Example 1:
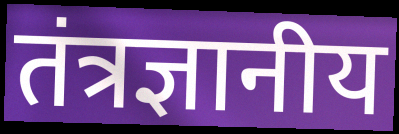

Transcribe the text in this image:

तंत्रज्ञानीय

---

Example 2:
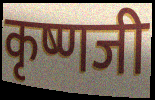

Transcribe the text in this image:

कृष्णजी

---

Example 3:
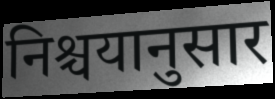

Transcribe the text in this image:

निश्चयानुसार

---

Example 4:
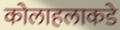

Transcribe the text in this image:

कोलाहलाकडे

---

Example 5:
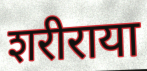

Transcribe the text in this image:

शरीराया